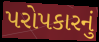
પરોપકારનું